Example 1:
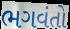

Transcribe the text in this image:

ભગવંતો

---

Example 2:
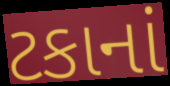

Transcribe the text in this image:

ટકાનાં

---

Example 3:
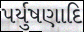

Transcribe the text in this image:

પર્યુષણાદિ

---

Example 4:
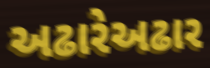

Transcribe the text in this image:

અઢારેઅઢાર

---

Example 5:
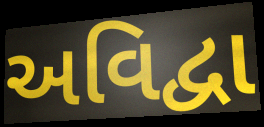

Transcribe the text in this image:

અવિદ્વા